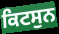
ਕਿਟਸੁਨ